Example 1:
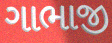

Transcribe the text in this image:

ગાભાજી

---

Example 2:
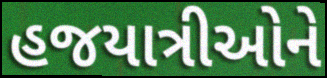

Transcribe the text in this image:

હજયાત્રીઓને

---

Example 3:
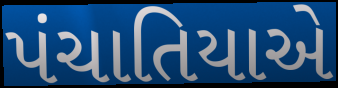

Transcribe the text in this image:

પંચાતિયાએ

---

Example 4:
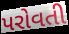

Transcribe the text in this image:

પરોવતી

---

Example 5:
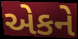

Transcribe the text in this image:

એકને